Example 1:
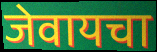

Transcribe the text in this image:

जेवायचा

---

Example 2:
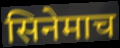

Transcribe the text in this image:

सिनेमाच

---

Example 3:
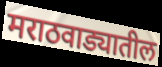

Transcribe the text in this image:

मराठवाड्यातील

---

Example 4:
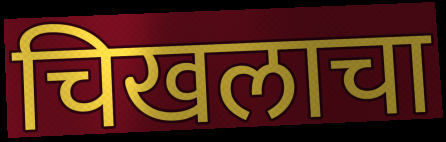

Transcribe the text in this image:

चिखलाचा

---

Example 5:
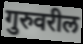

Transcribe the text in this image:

गुरुवरील